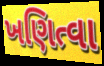
ખણિત્વા